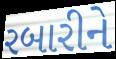
રબારીને